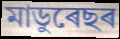
মাডুৰেছৰ